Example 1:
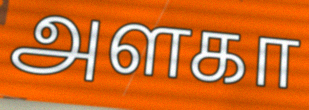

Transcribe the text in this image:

அளகா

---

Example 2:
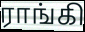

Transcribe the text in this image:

ராங்கி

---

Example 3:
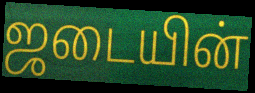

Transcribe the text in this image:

ஜடையின்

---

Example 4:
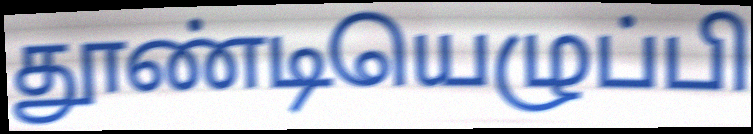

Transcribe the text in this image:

தூண்டியெழுப்பி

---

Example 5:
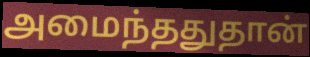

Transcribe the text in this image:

அமைந்ததுதான்